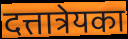
दत्तात्रेयका